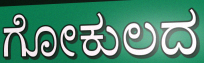
ಗೋಕುಲದ